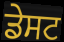
ਡੇਸਟ